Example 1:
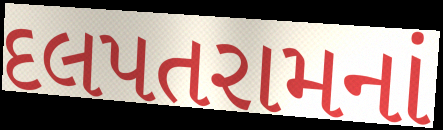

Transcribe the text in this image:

દલપતરામનાં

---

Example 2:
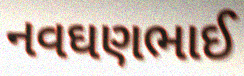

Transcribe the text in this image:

નવઘણભાઈ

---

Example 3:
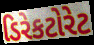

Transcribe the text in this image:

ડિરેકટોરેટ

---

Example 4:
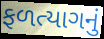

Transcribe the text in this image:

ફળત્યાગનું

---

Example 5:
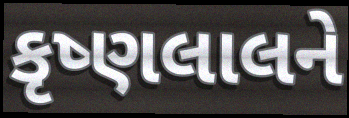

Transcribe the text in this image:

કૃષ્ણલાલને